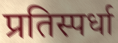
प्रतिस्पर्धा